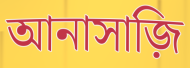
আনাসাজ়ি